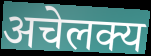
अचेलक्य